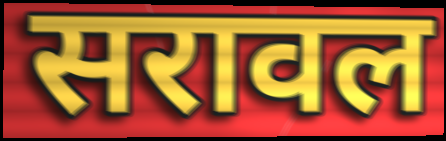
सरावल